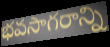
భవసాగరాన్ని